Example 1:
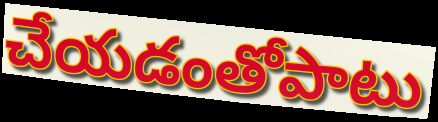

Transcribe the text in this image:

చేయడంతోపాటు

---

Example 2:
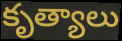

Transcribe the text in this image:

కృత్యాలు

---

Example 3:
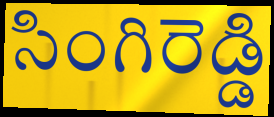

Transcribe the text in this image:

సింగిరెడ్డి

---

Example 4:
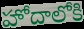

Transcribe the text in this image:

హోదాలోకి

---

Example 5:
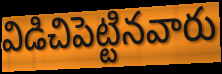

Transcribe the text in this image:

విడిచిపెట్టినవారు